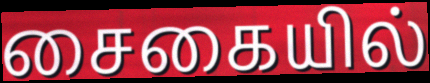
சைகையில்